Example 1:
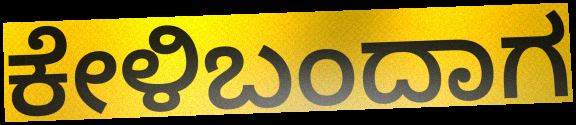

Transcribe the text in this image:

ಕೇಳಿಬಂದಾಗ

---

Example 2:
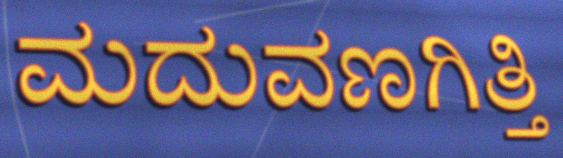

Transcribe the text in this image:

ಮದುವಣಗಿತ್ತಿ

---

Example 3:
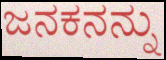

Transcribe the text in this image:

ಜನಕನನ್ನು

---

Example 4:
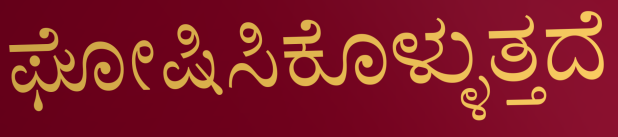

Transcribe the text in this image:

ಘೋಷಿಸಿಕೊಳ್ಳುತ್ತದೆ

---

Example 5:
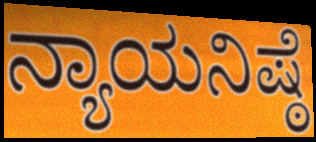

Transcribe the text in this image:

ನ್ಯಾಯನಿಷ್ಠೆ